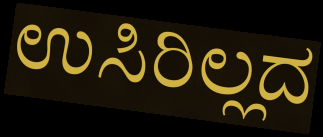
ಉಸಿರಿಲ್ಲದ